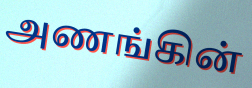
அணங்கின்